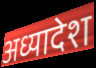
अध्यादेश